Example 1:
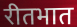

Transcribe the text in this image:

रीतभात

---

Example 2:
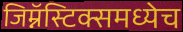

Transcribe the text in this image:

जिम्नॅस्टिक्समध्येच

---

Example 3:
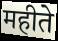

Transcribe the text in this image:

महीते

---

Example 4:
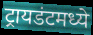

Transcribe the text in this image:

ट्रायडंटमध्ये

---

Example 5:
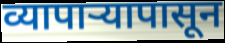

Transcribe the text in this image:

व्यापाऱ्यापासून